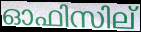
ഓഫിസില്